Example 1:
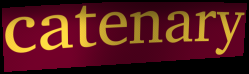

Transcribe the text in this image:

catenary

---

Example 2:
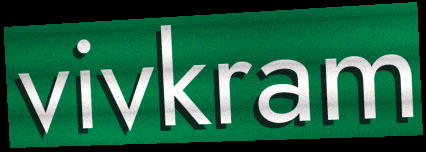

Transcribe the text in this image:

vivkram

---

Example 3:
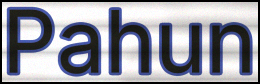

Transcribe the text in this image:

Pahun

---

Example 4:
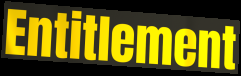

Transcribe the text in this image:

Entitlement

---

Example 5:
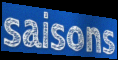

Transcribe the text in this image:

saisons